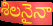
శిలనైనా